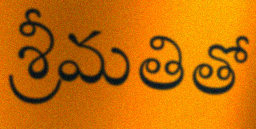
శ్రీమతితో